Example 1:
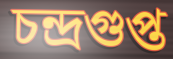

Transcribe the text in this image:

চন্দ্রগুপ্ত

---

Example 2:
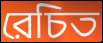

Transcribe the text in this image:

রেচিত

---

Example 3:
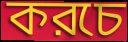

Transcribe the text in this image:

করচে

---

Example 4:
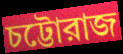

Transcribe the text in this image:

চট্টোরাজ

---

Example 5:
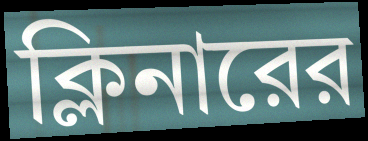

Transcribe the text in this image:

ক্লিনারের